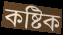
কষ্টিক